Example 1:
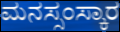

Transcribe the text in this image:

ಮನಸ್ಸಂಸ್ಕಾರ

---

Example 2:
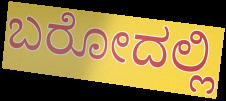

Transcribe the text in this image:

ಬರೋದಲ್ಲಿ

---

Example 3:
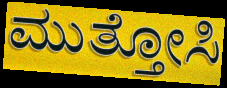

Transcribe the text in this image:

ಮುತ್ತೋಸಿ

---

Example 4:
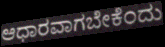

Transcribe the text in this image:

ಆಧಾರವಾಗಬೇಕೆಂದು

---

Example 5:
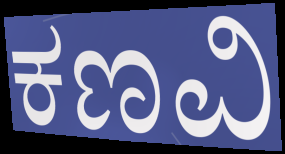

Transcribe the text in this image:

ಕಣವಿ